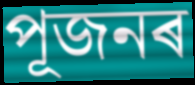
পূজনৰ